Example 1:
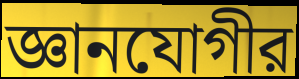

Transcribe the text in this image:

জ্ঞানযোগীর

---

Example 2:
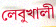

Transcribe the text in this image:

লেবুখালী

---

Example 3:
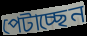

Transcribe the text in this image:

পেটাচ্ছেন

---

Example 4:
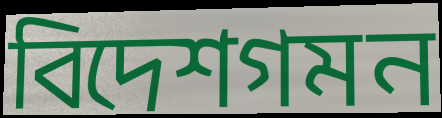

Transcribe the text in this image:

বিদেশগমন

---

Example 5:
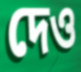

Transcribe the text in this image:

দেও